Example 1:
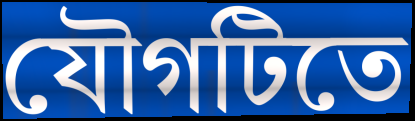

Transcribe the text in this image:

যৌগটিতে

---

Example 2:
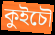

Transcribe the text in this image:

কুইচৌ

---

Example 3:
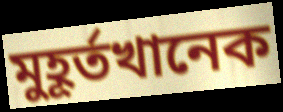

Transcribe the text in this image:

মুহূর্তখানেক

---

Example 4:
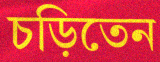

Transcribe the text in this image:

চড়িতেন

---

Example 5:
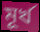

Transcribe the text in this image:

মূর্খ